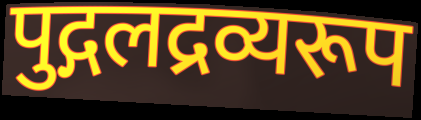
पुद्गलद्रव्यरूप